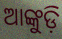
ଆଙ୍କୁଡ଼ି